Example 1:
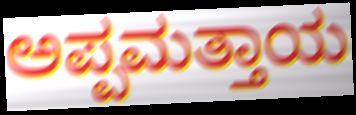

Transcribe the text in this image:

ಅಪ್ಪಮತ್ತಾಯ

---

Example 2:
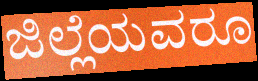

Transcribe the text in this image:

ಜಿಲ್ಲೆಯವರೂ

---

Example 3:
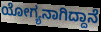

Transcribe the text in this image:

ಯೋಗ್ಯನಾಗಿದ್ದಾನೆ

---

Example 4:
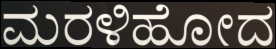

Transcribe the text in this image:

ಮರಳಿಹೋದ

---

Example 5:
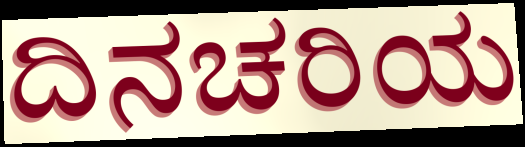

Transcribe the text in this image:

ದಿನಚರಿಯ